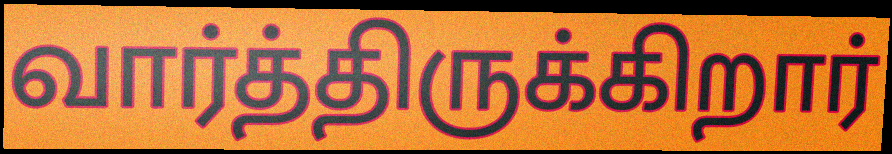
வார்த்திருக்கிறார்